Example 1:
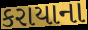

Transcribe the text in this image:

કરાયાના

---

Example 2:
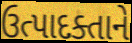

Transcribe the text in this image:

ઉત્પાદક્તાને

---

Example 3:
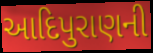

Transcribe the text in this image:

આદિપુરાણની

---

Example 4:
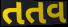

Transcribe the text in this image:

તતવ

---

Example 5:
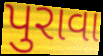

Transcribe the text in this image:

પુરાવા